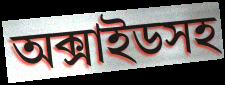
অক্সাইডসহ